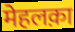
मेहलक़ा